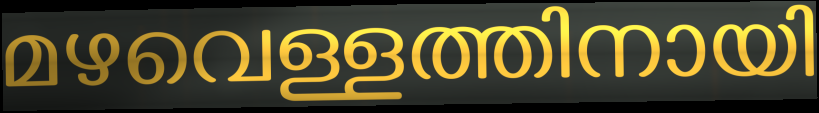
മഴവെള്ളത്തിനായി